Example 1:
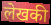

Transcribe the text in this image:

लेखकी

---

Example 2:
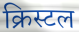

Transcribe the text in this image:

क्रिस्टल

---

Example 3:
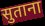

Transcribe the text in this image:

सुताना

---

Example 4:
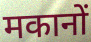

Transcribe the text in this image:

मकानों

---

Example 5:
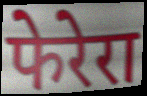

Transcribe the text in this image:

फेरेरा